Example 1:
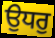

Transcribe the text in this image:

ਉਧਰੁ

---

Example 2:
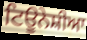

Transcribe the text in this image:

ਟਿਊਨੇਸ਼ੀਆ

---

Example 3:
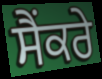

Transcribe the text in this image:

ਸੈਂਕਰੇ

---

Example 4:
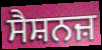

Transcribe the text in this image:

ਸੈਸ਼ਨਜ਼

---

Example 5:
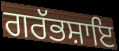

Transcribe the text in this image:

ਗਰੱਭਸ਼ਾਇ